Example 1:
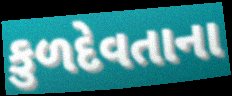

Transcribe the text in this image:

કુળદેવતાના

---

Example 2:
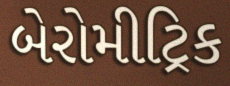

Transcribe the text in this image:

બેરોમીટ્રિક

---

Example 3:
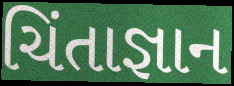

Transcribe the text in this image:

ચિંતાજ્ઞાન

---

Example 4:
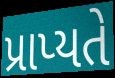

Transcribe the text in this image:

પ્રાપ્યતે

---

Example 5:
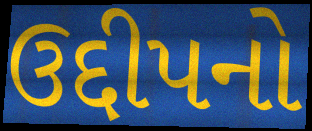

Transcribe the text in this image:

ઉદ્દીપનો